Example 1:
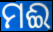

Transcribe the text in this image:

ମଈ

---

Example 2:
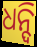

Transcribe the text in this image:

ଧନ୍ଦି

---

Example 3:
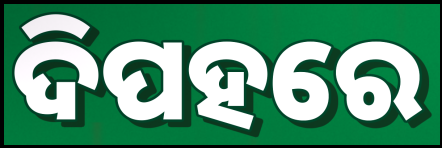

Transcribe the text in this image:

ଦିପହରେ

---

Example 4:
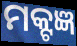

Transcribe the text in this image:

ମକ୍ଟଜ୍ଞ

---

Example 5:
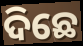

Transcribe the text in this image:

ଦିଛେ